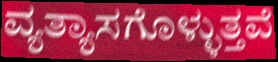
ವ್ಯತ್ಯಾಸಗೊಳ್ಳುತ್ತವೆ